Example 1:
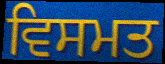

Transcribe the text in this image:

ਵਿਸਮਤ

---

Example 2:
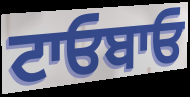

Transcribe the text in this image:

ਟਾਓਬਾਓ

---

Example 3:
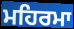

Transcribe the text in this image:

ਮਹਿਰਮਾ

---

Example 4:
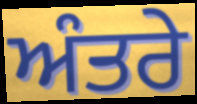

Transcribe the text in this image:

ਅੰਤਰੇ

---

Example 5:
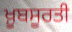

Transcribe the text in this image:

ਖ਼ੂਬਸੂਰਤੀ